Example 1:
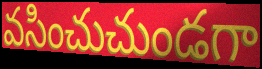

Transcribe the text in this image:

వసించుచుండగా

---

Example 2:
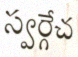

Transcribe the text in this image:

స్వర్గేచ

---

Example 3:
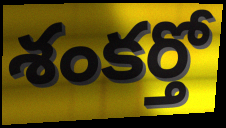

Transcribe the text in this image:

శంకర్తో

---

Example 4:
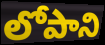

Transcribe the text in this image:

లోపాని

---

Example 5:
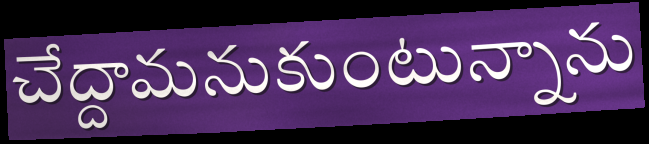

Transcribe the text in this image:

చేద్దామనుకుంటున్నాను